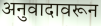
अनुवादावरून